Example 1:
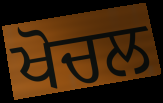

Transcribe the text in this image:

ਖੋਚਲ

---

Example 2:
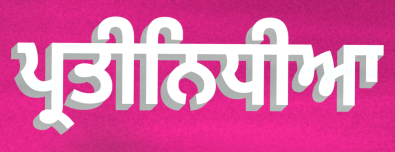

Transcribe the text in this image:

ਪ੍ਰਤੀਨਿਧੀਆ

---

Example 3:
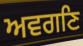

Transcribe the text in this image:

ਅਵਗਣਿ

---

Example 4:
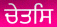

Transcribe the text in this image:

ਚੇਤਸਿ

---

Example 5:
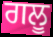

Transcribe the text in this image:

ਗਲੂ